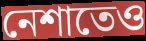
নেশাতেও